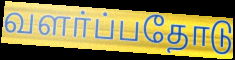
வளர்ப்பதோடு